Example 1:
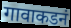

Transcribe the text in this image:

गावाकडनं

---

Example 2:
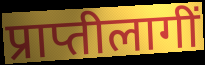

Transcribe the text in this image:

प्राप्तीलागीं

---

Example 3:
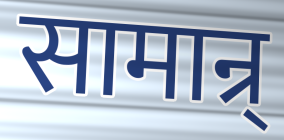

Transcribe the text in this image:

सामान्र्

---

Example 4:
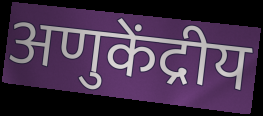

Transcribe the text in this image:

अणुकेंद्रीय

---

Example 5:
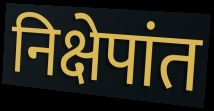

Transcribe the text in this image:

निक्षेपांत